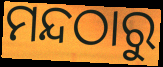
ମନ୍ଦଠାରୁ